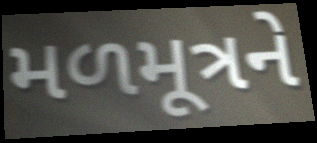
મળમૂત્રને